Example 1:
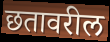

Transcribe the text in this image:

छतावरील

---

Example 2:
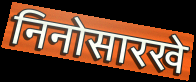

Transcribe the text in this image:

निनोसारखे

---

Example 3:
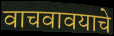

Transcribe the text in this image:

वाचवावयाचे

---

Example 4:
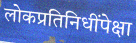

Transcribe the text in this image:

लोकप्रतिनिधींपेक्षा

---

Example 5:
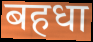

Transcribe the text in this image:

बहधा